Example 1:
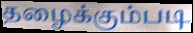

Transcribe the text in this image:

தழைக்கும்படி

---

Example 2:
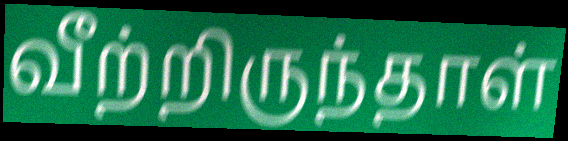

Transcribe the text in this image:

வீற்றிருந்தாள்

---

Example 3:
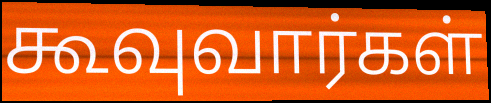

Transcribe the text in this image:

கூவுவார்கள்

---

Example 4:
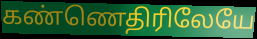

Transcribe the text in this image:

கண்ணெதிரிலேயே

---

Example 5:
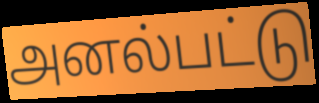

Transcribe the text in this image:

அனல்பட்டு